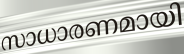
സാധാരണമായി